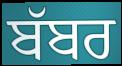
ਬੱਬਰ